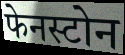
फेनस्टोन